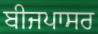
ਬੀਜਪਾਸਰ